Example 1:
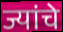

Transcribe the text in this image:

ज्यांचे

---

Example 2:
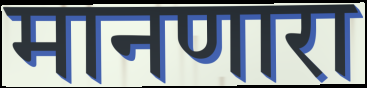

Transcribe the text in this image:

मानणारा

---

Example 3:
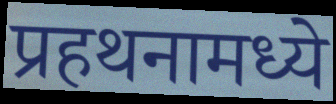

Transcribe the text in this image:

प्रहथनामध्ये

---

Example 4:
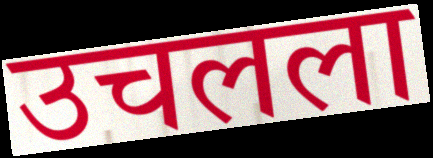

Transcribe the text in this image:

उचलला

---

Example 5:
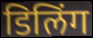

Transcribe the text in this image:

डिलिंग